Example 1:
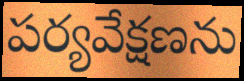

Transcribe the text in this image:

పర్యవేక్షణను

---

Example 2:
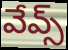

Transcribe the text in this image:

వేవ్స్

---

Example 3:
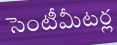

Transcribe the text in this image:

సెంటీమీటర్ల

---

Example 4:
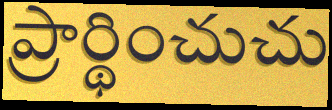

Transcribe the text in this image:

ప్రార్థించుచు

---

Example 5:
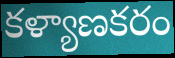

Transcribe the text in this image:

కళ్యాణకరం